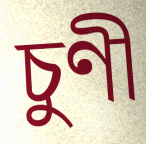
চুণী